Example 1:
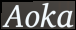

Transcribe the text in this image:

Aoka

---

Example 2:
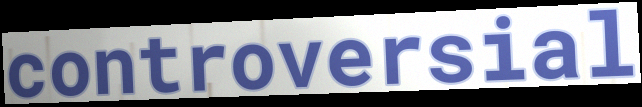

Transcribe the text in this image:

controversial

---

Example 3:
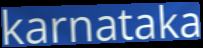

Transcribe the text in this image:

karnataka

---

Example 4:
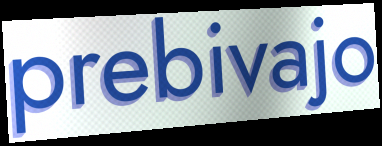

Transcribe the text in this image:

prebivajo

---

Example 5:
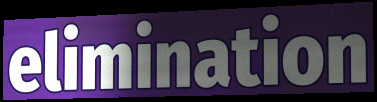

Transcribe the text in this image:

elimination